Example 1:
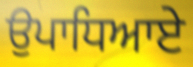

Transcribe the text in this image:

ਉਪਾਧਿਆਏ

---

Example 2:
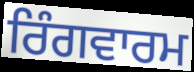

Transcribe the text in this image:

ਰਿੰਗਵਾਰਮ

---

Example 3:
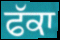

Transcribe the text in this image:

ਫੱਕਾ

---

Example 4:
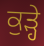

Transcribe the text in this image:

ਕੁੜ੍ਹੇ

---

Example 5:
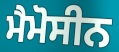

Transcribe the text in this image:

ਮੈਮੋਸੀਨ